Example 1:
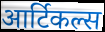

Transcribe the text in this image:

आर्टिकल्स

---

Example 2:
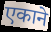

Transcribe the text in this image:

एकाने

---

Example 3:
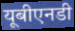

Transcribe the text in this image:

यूबीएनडी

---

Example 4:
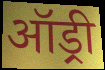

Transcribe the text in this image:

ऑड्री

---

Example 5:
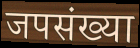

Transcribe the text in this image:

जपसंख्या